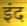
इंद